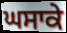
ਘਸਾਕੇ